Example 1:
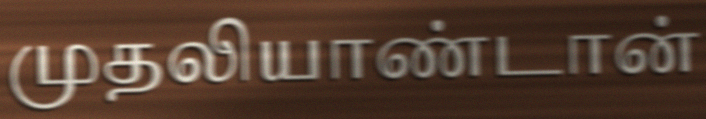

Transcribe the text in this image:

முதலியாண்டான்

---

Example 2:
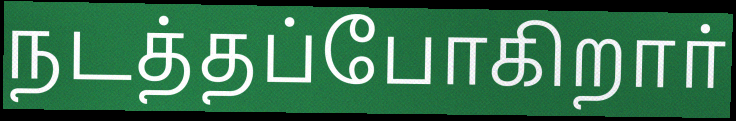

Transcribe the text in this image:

நடத்தப்போகிறார்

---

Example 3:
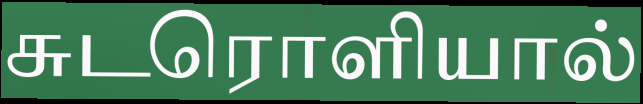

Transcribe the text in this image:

சுடரொளியால்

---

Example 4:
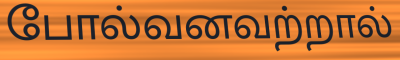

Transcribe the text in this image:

போல்வனவற்றால்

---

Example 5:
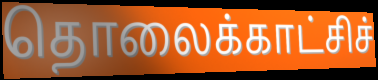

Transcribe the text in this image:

தொலைக்காட்சிச்